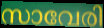
സാവേരി